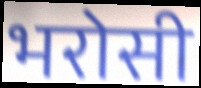
भरोसी